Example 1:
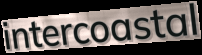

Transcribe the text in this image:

intercoastal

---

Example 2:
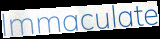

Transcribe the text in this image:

Immaculate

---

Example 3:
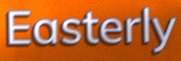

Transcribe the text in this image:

Easterly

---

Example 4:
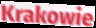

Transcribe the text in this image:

Krakowie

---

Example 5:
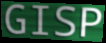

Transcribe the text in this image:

GISP